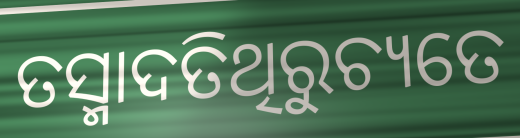
ତସ୍ମାଦତିଥିରୁଚ୍ୟତେ